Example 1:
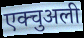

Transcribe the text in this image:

एक्चुअली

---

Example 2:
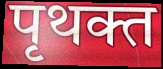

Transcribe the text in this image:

पृथक्त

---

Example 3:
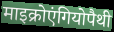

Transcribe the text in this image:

माइक्रोएंगियोपैथी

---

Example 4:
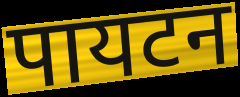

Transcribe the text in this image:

पायटन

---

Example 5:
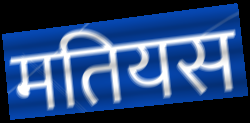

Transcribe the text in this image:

मतियस